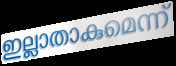
ഇല്ലാതാകുമെന്ന്